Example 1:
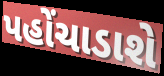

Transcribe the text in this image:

પહોંચાડાશે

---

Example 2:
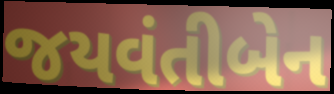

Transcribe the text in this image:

જયવંતીબેન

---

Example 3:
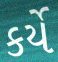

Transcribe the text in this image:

કર્યે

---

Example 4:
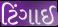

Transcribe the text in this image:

ટિંગાઈ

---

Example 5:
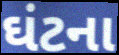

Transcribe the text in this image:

ઘંટના